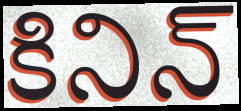
కినిన్